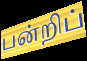
பன்றிப்